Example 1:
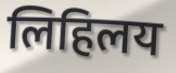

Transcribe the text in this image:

लिहिलय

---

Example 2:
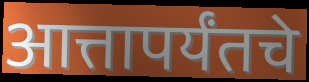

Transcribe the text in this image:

आत्तापर्यंतचे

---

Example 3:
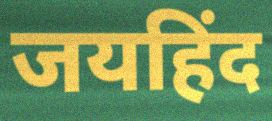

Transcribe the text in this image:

जयहिंद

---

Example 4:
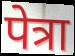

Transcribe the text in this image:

पेत्रा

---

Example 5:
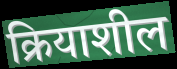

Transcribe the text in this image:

क्रियाशील